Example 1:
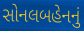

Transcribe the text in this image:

સોનલબહેનનું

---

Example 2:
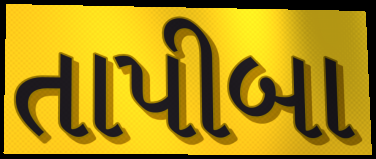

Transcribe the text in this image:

તાપીબા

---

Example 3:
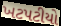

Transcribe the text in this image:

ખટપટીયો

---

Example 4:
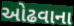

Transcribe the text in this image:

ઓઢવાના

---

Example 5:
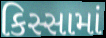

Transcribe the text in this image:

કિસ્સામાં